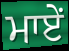
ਮਾਏਂ